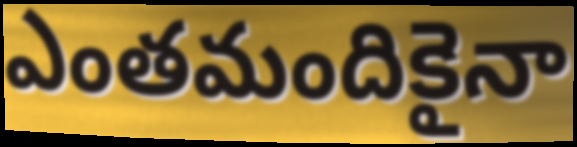
ఎంతమందికైనా